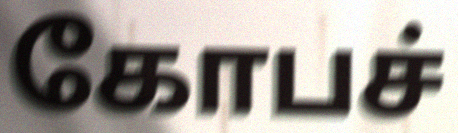
கோபச்